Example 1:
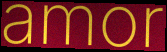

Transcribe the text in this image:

amor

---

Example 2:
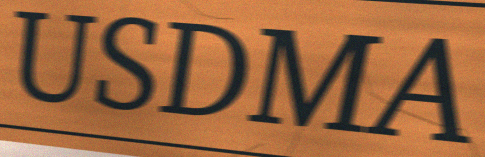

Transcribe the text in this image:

USDMA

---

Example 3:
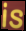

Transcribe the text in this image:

is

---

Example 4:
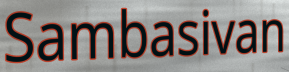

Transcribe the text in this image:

Sambasivan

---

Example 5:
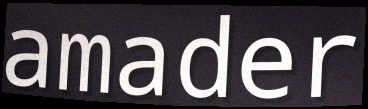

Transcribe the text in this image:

amader